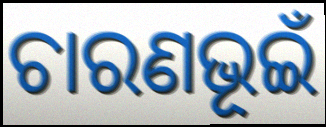
ଚାରଣଭୂଇଁ